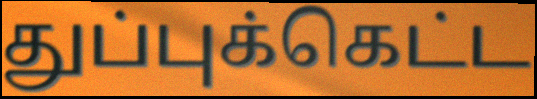
துப்புக்கெட்ட